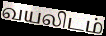
வயலிடம்